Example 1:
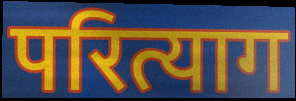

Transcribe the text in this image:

परित्याग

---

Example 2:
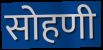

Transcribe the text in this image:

सोहणी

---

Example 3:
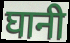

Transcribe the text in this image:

घानी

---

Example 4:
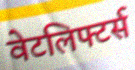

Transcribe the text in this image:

वेटलिफ्टर्स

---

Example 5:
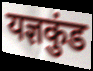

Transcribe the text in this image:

यज्ञकुंड